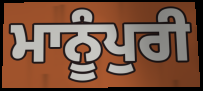
ਮਾਨੂੰਪੁਰੀ